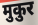
मुकुर